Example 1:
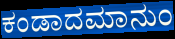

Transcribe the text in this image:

ಕಂಡಾದಮಾನುಂ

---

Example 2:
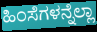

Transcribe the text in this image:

ಹಿಂಸೆಗಳನ್ನೆಲ್ಲಾ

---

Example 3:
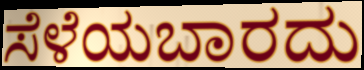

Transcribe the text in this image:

ಸೆಳೆಯಬಾರದು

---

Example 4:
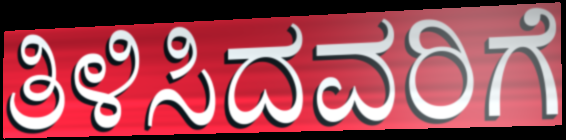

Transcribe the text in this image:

ತಿಳಿಸಿದವರಿಗೆ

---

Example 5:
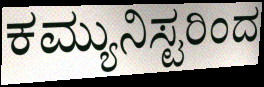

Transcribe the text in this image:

ಕಮ್ಯುನಿಸ್ಟರಿಂದ